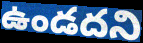
ఉండదని